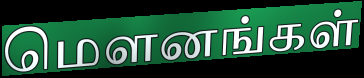
மௌனங்கள்